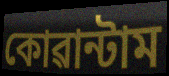
কোৱান্টাম